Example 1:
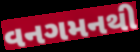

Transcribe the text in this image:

વનગમનથી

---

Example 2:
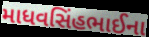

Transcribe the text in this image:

માધવસિંહભાઈના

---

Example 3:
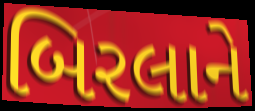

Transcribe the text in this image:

બિરલાને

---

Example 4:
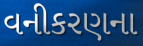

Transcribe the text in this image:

વનીકરણના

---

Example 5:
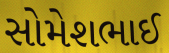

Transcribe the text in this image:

સોમેશભાઈ